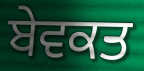
ਬੇਵਕਤ